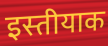
इस्तीयाक